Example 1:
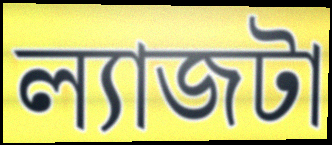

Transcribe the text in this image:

ল্যাজটা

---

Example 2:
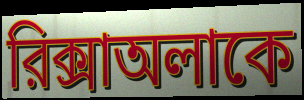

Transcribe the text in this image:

রিক্সাঅলাকে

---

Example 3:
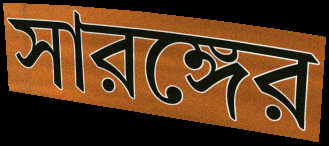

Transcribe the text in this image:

সারঙ্গের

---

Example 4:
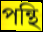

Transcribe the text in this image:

পন্থি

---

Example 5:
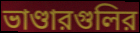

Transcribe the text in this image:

ভাণ্ডারগুলির